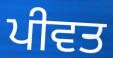
ਪੀਵਤ